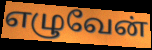
எழுவேன்